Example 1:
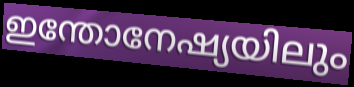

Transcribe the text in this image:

ഇന്തോനേഷ്യയിലും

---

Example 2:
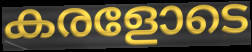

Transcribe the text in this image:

കരളോടെ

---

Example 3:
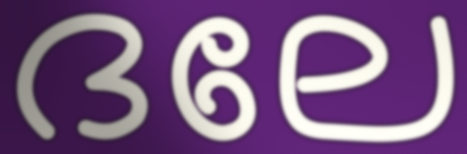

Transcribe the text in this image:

ദലേ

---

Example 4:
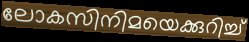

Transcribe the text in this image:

ലോകസിനിമയെക്കുറിച്ച്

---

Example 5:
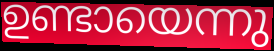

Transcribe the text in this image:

ഉണ്ടായെന്നു